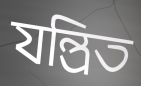
যন্ত্রিত